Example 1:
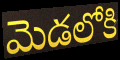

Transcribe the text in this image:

మెడలోకి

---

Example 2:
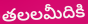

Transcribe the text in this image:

తలలమీదికి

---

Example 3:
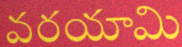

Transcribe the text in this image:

వరయామి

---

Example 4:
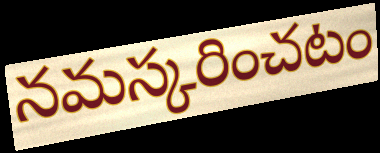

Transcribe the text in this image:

నమస్కరించటం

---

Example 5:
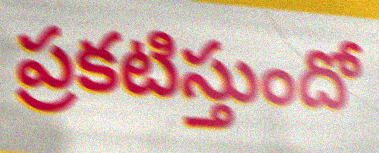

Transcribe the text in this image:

ప్రకటిస్తుందో